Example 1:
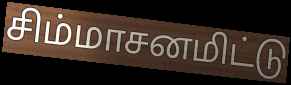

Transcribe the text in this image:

சிம்மாசனமிட்டு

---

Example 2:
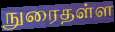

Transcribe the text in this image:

நுரைதள்ள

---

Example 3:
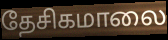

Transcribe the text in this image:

தேசிகமாலை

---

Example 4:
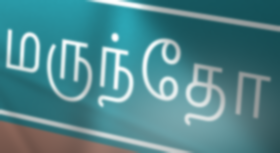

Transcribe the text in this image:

மருந்தோ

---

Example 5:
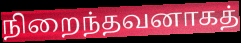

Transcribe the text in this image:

நிறைந்தவனாகத்